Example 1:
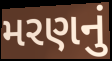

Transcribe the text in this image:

મરણનું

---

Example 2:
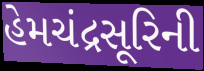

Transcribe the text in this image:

હેમચંદ્રસૂરિની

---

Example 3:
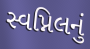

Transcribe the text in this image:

સ્વપ્નિલનું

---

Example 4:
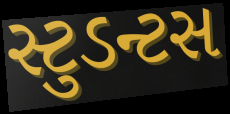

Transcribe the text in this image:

સ્ટુડન્ટસ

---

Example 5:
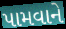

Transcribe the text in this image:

પામવાને